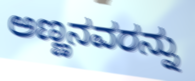
ಅಣ್ಣನವರನ್ನು